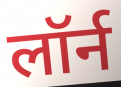
लॉर्न